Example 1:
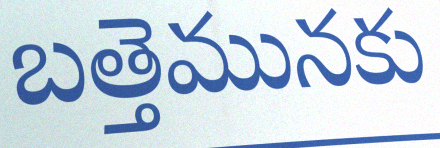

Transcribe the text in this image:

బత్తెమునకు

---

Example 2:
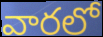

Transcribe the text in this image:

వారలో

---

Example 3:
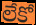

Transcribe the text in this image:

లేకో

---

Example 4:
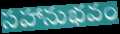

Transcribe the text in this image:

సహానుభవం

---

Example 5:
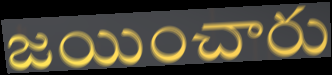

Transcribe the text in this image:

జయించారు